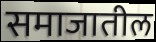
समाजातील